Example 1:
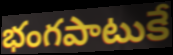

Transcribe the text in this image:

భంగపాటుకే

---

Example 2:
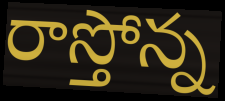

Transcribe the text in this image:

రాస్తోన్న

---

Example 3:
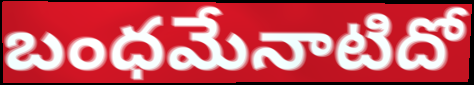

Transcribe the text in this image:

బంధమేనాటిదో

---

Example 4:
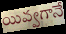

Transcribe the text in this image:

యివ్వగానే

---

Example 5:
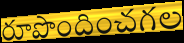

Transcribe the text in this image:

రూపొందించగల